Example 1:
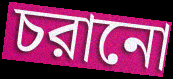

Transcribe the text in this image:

চরানো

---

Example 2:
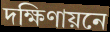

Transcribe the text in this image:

দক্ষিণায়নে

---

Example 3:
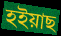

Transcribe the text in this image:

হইয়াছ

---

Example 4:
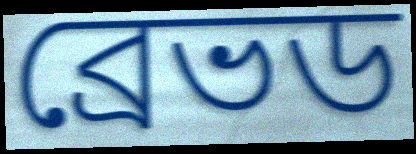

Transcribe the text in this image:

ব্রেভড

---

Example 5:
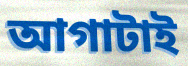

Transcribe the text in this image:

আগাটাই